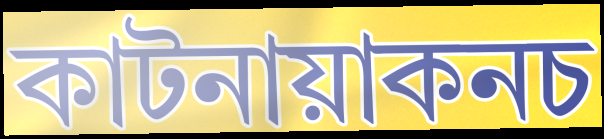
কাটনায়াকনচ